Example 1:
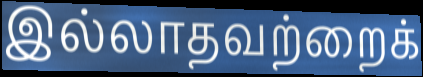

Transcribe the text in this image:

இல்லாதவற்றைக்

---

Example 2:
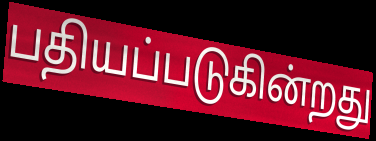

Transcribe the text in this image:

பதியப்படுகின்றது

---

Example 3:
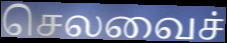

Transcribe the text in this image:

செலவைச்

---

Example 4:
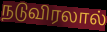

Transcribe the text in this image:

நடுவிரலால்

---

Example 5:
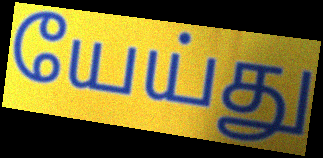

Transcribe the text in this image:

யேய்து